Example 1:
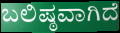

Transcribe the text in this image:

ಬಲಿಷ್ಠವಾಗಿದೆ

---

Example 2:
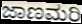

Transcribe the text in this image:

ಜಾಣಮರಿ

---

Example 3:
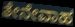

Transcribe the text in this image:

ತೇನೇವಾಹ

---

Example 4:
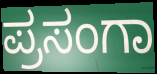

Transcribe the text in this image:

ಪ್ರಸಂಗಾ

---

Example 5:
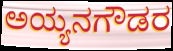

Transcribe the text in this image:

ಅಯ್ಯನಗೌಡರ